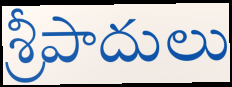
శ్రీపాదులు